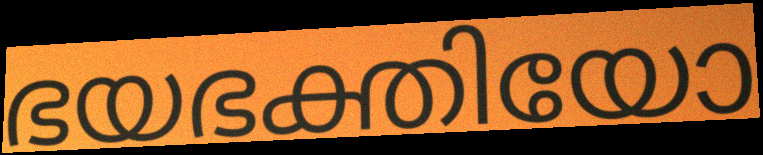
ഭയഭക്തിയോ